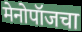
मेनोपॉजचा